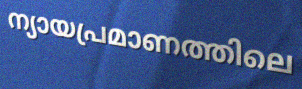
ന്യായപ്രമാണത്തിലെ